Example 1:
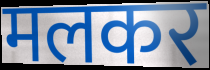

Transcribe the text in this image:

मलकर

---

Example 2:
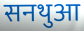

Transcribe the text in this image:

सनथुआ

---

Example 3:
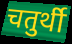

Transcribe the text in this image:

चतुर्थी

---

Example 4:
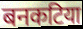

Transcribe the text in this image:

बनकटिया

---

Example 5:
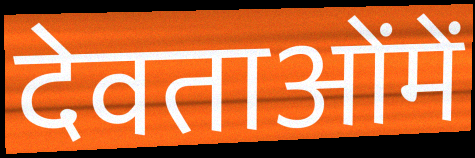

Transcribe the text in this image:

देवताओंमें